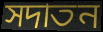
সদাতন